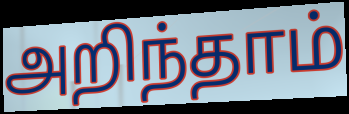
அறிந்தாம்